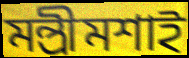
মন্ত্রীমশাই